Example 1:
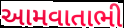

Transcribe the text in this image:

આમવાતાભી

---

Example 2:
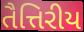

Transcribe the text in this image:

તૈત્તિરીય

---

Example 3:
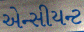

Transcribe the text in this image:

એન્સીયન્ટ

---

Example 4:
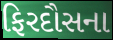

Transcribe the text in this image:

ફિરદૌસના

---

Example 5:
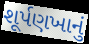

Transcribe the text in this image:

શૂર્પણખાનું